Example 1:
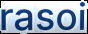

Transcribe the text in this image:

rasoi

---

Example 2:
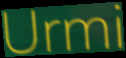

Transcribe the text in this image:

Urmi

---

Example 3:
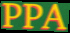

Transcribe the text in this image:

PPA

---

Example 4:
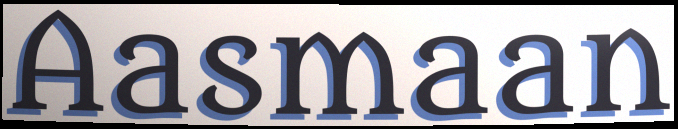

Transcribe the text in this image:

Aasmaan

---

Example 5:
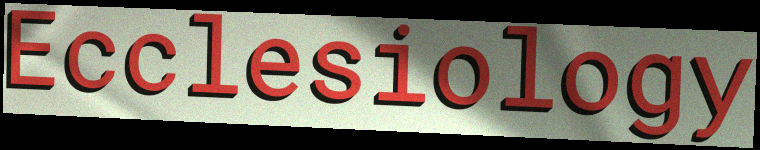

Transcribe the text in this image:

Ecclesiology